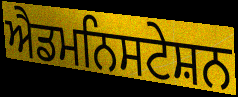
ਐਡਮਨਿਸਟੇਸ਼ਨ